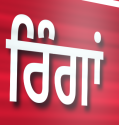
ਰਿੰਗਾਂ